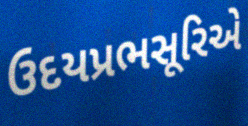
ઉદયપ્રભસૂરિએ